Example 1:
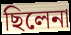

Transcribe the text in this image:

ছিলেনা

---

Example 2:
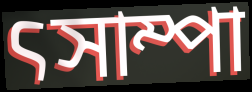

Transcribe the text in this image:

ৎসাম্পা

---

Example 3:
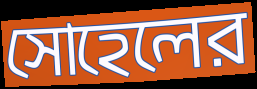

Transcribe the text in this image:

সোহেলের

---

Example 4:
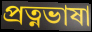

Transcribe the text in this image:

প্রত্নভাষা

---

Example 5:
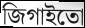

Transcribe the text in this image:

জিগাইতো